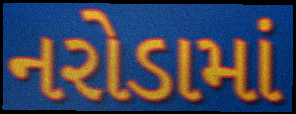
નરોડામાં